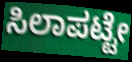
ಸಿಲಾಪಟ್ಟೇ